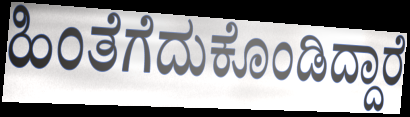
ಹಿಂತೆಗೆದುಕೊಂಡಿದ್ದಾರೆ